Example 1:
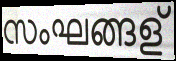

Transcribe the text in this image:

സംഘങ്ങള്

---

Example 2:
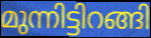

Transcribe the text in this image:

മുന്നിട്ടിറങ്ങി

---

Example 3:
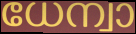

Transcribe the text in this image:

ധേന്വാ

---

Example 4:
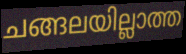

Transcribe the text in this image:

ചങ്ങലയില്ലാത്ത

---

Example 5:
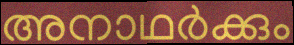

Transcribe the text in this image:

അനാഥർക്കും